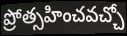
ప్రోత్సహించవచ్చో